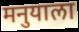
मनुयाला